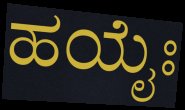
ಹಯೈಃ